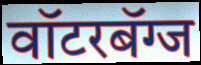
वॉटरबॅग्ज